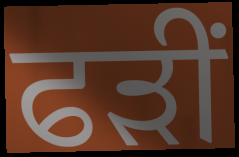
ਫੜੀਂ